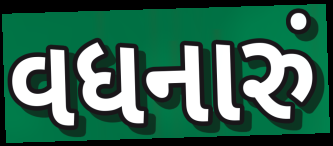
વધનારું